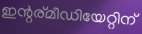
ഇന്റര്മീഡിയേറ്റിന്